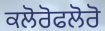
ਕਲੋਰੋਫਲੋਰੋ